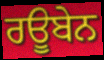
ਰਊਬੇਨ